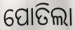
ପୋତିଲା